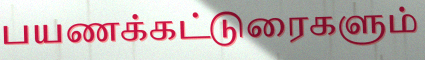
பயணக்கட்டுரைகளும்